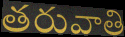
తరువాతి